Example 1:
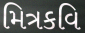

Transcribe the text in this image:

મિત્રકવિ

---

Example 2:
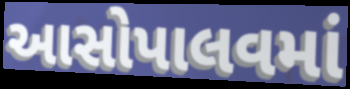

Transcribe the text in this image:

આસોપાલવમાં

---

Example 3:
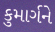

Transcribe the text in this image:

કુમાર્ગને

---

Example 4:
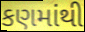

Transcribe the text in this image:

કણમાંથી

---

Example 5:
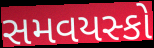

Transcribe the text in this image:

સમવયસ્કો